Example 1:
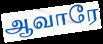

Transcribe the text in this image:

ஆவாரே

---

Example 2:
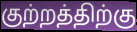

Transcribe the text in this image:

குற்றத்திற்கு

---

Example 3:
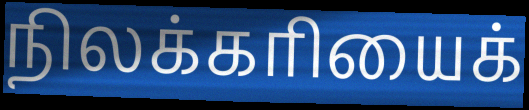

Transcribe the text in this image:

நிலக்கரியைக்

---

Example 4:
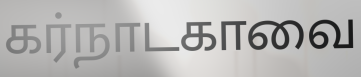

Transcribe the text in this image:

கர்நாடகாவை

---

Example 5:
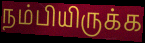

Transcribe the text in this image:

நம்பியிருக்க